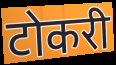
टोकरी